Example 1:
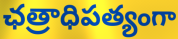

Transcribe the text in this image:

ఛత్రాధిపత్యంగా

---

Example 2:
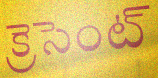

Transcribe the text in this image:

క్రెసెంట్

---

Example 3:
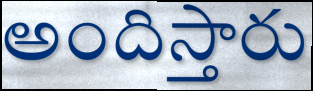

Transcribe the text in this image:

అందిస్తారు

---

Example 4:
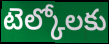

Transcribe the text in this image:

టెల్కోలకు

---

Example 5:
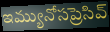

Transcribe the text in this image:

ఇమ్యునోసప్రెసివ్